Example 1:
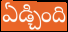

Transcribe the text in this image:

ఏడ్చింది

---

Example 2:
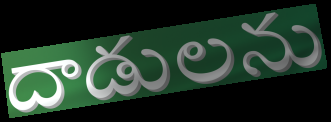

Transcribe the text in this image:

దాడులను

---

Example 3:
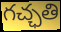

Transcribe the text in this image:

గచ్ఛతి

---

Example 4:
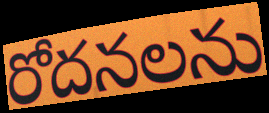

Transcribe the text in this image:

రోదనలను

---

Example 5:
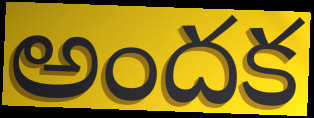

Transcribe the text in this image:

అందక